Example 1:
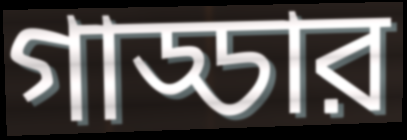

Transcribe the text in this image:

গাড্ডার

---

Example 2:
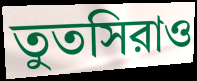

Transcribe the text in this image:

তুতসিরাও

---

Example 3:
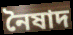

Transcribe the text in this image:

নৈষাদ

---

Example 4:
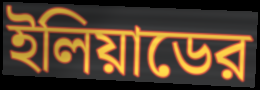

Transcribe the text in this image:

ইলিয়াডের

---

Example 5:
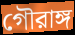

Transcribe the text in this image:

গৌরাঙ্গ